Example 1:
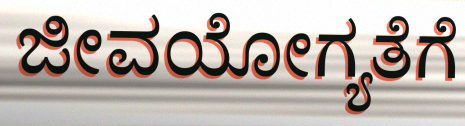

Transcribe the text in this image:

ಜೀವಯೋಗ್ಯತೆಗೆ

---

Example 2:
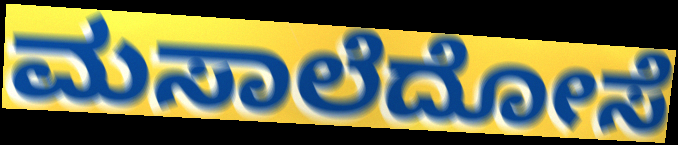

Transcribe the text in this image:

ಮಸಾಲೆದೋಸೆ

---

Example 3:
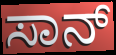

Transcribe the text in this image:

ಸಾನ್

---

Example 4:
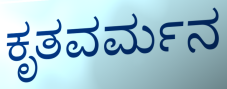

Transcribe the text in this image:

ಕೃತವರ್ಮನ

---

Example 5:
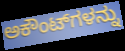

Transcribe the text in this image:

ಅಕೌಂಟ್‌ಗಳನ್ನು